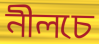
নীলচে